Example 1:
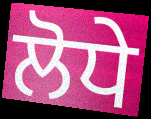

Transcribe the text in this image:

ਲੋਧੇ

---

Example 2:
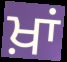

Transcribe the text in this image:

ਖ਼ਾਂ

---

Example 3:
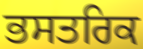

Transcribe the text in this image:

ਭਸਤਰਿਕ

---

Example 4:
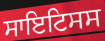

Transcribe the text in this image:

ਸਾਇਟਿਸਸ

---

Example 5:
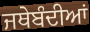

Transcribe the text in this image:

ਜਥੇਬੰਦੀਆਂ